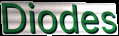
Diodes